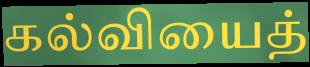
கல்வியைத்